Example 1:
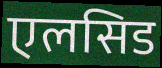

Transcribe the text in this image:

एलसिड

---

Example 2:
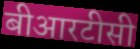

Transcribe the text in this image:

बीआरटीसी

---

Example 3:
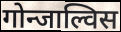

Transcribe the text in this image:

गोन्जाल्विस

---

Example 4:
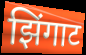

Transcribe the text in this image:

झिंगाट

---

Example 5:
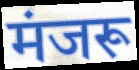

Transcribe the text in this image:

मंजरू